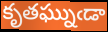
కృతఘ్నుఁడా